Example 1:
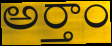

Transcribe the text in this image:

అర్తాం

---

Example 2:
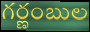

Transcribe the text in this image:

గర్ణంబుల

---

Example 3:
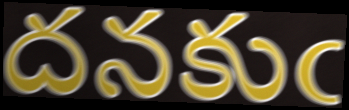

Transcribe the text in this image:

దనకుఁ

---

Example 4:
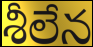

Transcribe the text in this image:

శీలేన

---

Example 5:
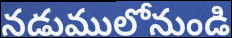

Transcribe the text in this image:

నడుములోనుండి